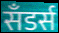
सॅंडर्स